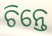
ଚିନ୍ତେ